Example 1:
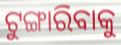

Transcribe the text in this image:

ଟୁଙ୍ଗାରିବାକୁ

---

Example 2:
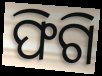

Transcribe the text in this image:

ଫିଗି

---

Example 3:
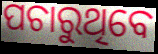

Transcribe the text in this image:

ପଚାରୁଥିବେ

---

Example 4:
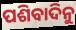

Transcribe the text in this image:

ପଶିବାଦିନୁ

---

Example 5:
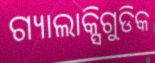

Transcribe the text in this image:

ଗ୍ୟାଲାକ୍ସିଗୁଡିକ